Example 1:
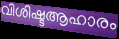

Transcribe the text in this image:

വിശിഷ്ടആഹാരം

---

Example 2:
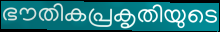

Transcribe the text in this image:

ഭൗതികപ്രകൃതിയുടെ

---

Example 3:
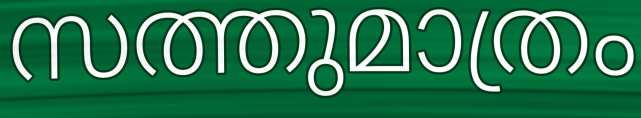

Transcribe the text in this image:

സത്തുമാത്രം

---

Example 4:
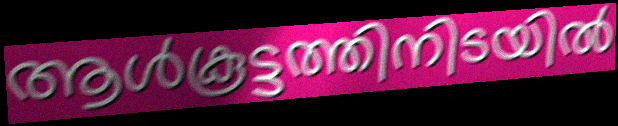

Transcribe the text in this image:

ആൾകൂട്ടത്തിനിടയിൽ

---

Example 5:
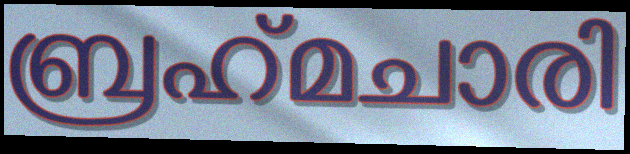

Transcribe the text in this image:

ബ്രഹ്‌മചാരി